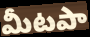
మీటపా